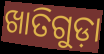
ଖାତିଗୁଡ଼ା